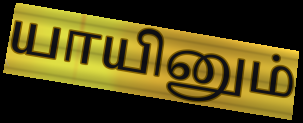
யாயினும்